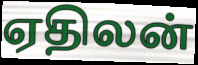
ஏதிலன்